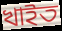
খাইত